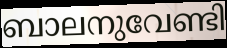
ബാലനുവേണ്ടി